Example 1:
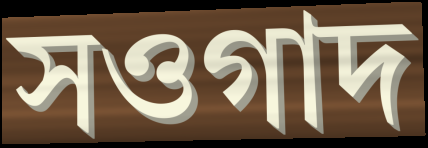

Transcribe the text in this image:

সওগাদ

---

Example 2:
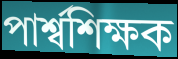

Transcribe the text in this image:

পার্শ্বশিক্ষক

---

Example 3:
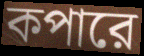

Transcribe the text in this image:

কপারে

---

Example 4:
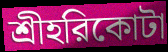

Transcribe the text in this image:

শ্রীহরিকোটা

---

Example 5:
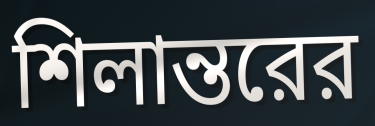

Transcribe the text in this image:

শিলান্তরের